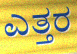
ಎತ್ತರ